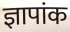
ज्ञापांक